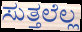
ಸುತ್ತಲೆಲ್ಲ